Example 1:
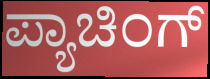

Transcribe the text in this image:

ಪ್ಯಾಚಿಂಗ್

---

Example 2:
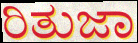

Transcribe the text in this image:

ರಿತುಜಾ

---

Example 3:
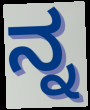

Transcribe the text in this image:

ನ್ನ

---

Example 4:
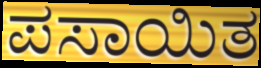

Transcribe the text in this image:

ಪಸಾಯಿತ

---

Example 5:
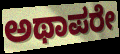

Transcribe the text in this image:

ಅಥಾಪರೇ